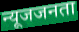
न्यूजजनता